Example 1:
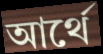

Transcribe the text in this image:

আর্থে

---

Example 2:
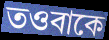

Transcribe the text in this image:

তওবাকে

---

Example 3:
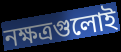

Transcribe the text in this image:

নক্ষত্রগুলোই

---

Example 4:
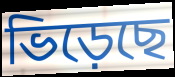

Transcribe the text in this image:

ভিড়েছে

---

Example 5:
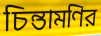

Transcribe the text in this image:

চিন্তামণির